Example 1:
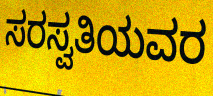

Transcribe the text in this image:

ಸರಸ್ವತಿಯವರ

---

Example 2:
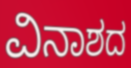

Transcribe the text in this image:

ವಿನಾಶದ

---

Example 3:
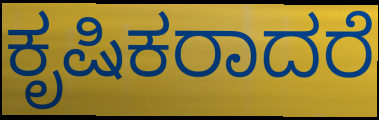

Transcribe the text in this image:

ಕೃಷಿಕರಾದರೆ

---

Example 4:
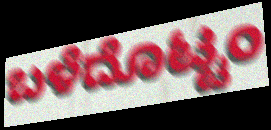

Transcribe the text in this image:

ಬಳೆದೊಟ್ಟಂ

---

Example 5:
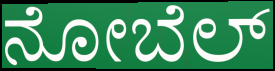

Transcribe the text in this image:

ನೋಬೆಲ್